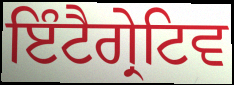
ਇੰਟੈਗ੍ਰੇਟਿਵ